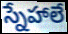
స్నేహాలే